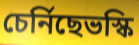
চেৰ্নিছেভস্কি